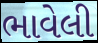
ભાવેલી